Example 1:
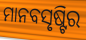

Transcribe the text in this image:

ମାନବସୃଷ୍ଟିର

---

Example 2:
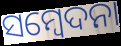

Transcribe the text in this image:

ସମ୍ବେଦନା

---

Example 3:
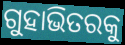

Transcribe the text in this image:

ଗୁହାଭିତରକୁ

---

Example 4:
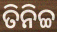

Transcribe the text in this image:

ତିନିଚ୍ଚ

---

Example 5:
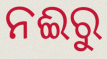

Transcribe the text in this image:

ନଈରୁ